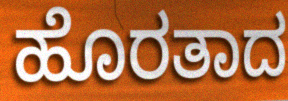
ಹೊರತಾದ